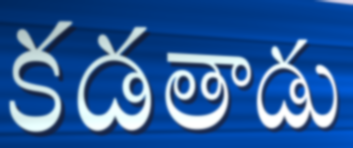
కడతాడు